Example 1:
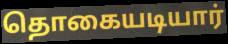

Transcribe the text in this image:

தொகையடியார்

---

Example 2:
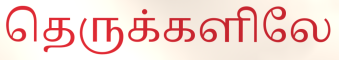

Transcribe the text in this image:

தெருக்களிலே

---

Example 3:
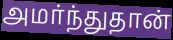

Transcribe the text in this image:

அமர்ந்துதான்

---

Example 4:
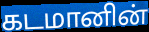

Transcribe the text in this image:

கடமானின்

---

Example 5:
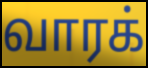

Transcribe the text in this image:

வாரக்